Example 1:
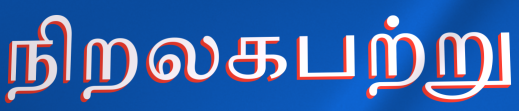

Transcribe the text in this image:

நிறலகபற்று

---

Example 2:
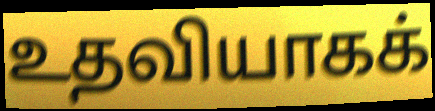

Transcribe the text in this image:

உதவியாகக்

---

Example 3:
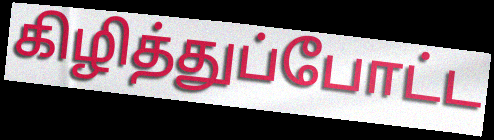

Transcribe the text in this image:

கிழித்துப்போட்ட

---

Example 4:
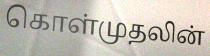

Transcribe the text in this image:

கொள்முதலின்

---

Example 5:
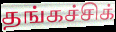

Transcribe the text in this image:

தங்கச்சிக்